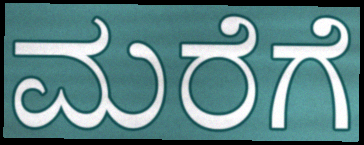
ಮರೆಗೆ